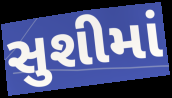
સુશીમાં